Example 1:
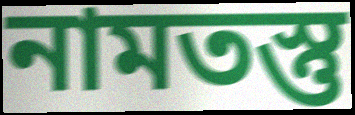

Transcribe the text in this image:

নামতস্তু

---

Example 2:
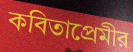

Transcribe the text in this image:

কবিতাপ্রেমীর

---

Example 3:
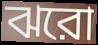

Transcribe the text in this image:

ঝরো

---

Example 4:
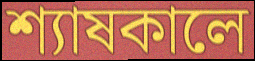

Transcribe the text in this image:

শ্যাষকালে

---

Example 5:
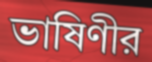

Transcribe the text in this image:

ভাষিণীর